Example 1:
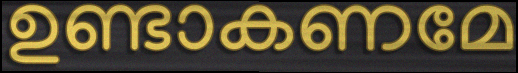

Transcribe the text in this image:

ഉണ്ടാകണമേ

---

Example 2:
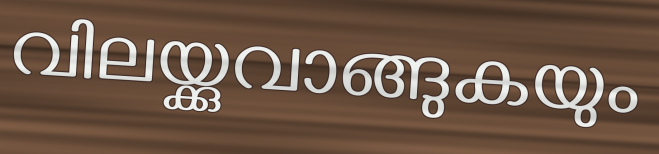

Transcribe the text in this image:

വിലയ്ക്കുവാങ്ങുകയും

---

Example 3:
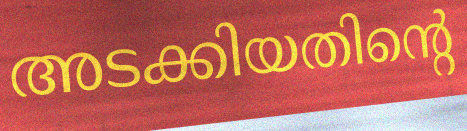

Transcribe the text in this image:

അടക്കിയതിന്റെ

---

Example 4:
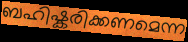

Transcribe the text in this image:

ബഹിഷ്കരിക്കണമെന്ന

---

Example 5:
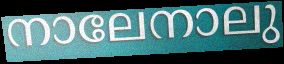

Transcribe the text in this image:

നാലേനാലു